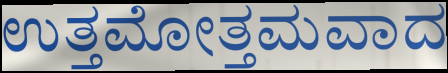
ಉತ್ತಮೋತ್ತಮವಾದ